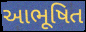
આભૂષિત